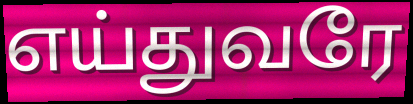
எய்துவரே